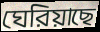
ঘেরিয়াছে